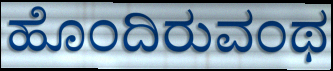
ಹೊಂದಿರುವಂಥ